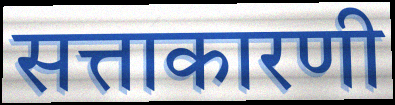
सत्ताकारणी